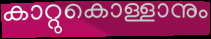
കാറ്റുകൊള്ളാനും